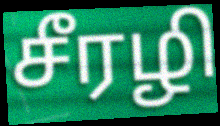
சீரழி